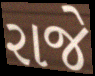
રાજે